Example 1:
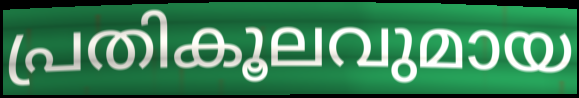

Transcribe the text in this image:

പ്രതികൂലവുമായ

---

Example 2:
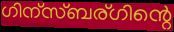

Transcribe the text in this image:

ഗിന്സ്ബര്ഗിന്റെ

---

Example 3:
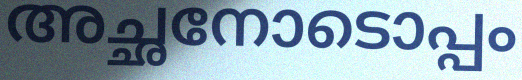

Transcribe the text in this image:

അച്ഛനോടൊപ്പം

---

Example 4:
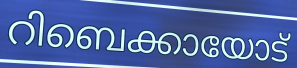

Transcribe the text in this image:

റിബെക്കായോട്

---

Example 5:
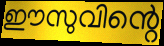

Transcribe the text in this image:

ഈസുവിന്റെ